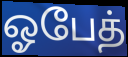
ஓபேத்